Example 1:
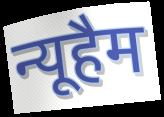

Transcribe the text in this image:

न्यूहैम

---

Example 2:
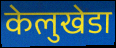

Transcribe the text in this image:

केलुखेडा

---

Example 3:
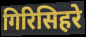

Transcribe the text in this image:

गिरिसिहरे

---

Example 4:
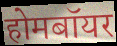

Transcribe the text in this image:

होमबॉयर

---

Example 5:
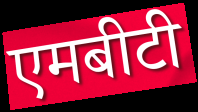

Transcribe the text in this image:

एमबीटी